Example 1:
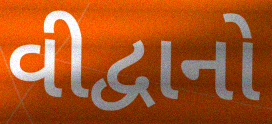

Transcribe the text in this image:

વીદ્વાનો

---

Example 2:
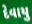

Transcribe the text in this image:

દેવાયુ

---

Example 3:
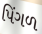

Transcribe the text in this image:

પિંગળ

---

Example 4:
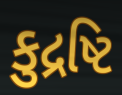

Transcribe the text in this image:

કુદ્રષ્ટિ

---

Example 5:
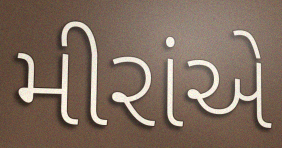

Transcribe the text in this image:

મીરાંએ